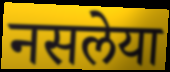
नसलेया